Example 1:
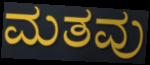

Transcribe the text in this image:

ಮತವು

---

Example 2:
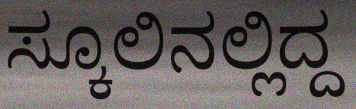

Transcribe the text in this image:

ಸ್ಕೂಲಿನಲ್ಲಿದ್ದ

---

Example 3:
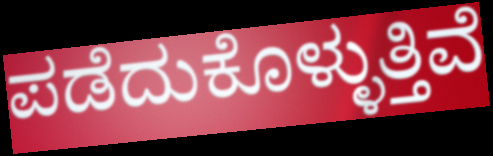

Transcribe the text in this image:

ಪಡೆದುಕೊಳ್ಳುತ್ತಿವೆ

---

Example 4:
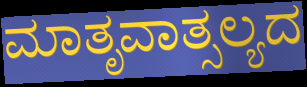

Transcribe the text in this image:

ಮಾತೃವಾತ್ಸಲ್ಯದ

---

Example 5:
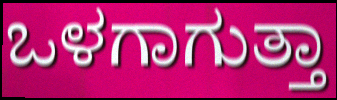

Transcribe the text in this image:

ಒಳಗಾಗುತ್ತಾ